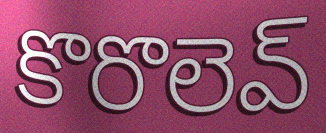
కొరొలెవ్